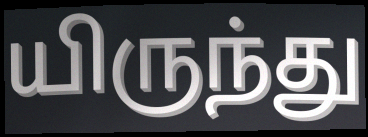
யிருந்து